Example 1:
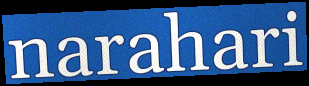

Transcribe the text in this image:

narahari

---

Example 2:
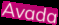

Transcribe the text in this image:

Avada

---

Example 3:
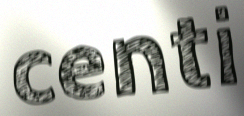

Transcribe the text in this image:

centi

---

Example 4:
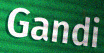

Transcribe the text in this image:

Gandi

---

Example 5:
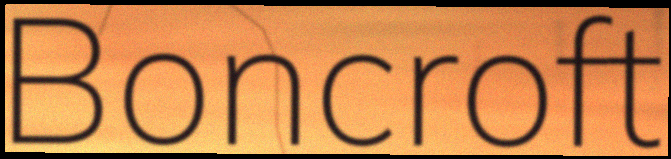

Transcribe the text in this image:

Boncroft